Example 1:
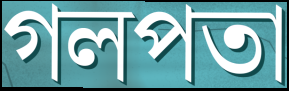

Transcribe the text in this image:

গলপতা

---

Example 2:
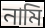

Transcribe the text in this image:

নামি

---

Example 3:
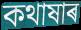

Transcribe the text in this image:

কথাষাৰ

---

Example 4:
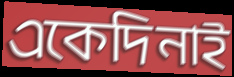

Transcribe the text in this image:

একেদিনাই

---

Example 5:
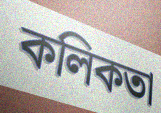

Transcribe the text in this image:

কলিকতা